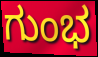
ಗುಂಭ